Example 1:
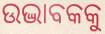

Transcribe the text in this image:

ଉଦ୍ଭାବକକୁ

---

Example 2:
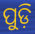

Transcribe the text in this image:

ପୁଡ଼ି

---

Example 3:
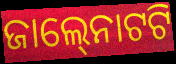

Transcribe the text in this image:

ଜାଲ୍‍ନୋଟଟି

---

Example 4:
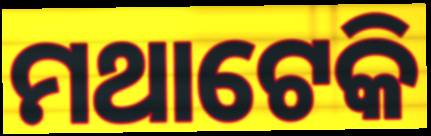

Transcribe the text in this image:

ମଥାଟେକି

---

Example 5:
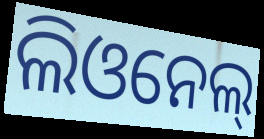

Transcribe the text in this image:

ଲିଓନେଲ୍